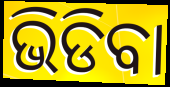
ଭିଡିବା